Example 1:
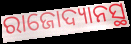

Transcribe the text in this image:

ରାଜୋଦ୍ୟାନସ୍ଥ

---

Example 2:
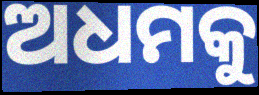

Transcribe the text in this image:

ଅଧମକୁ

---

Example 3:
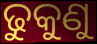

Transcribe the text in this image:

ଢୁକୁଣୁ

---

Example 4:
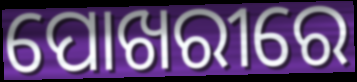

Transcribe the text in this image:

ପୋଖରୀରେ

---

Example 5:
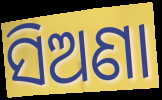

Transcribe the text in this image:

ସିଅଣା